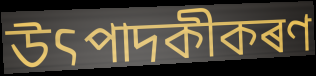
উৎপাদকীকৰণ